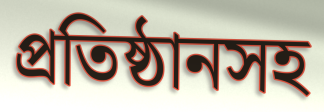
প্রতিষ্ঠানসহ